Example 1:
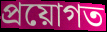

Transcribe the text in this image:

প্ৰয়োগত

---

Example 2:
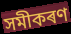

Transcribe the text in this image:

সমীকৰণ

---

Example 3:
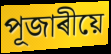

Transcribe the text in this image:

পূজাৰীয়ে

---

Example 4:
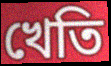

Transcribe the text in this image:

খেতি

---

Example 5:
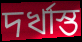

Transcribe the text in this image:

দৰ্খাস্ত